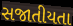
સજાતીયતા